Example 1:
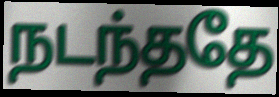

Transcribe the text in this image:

நடந்ததே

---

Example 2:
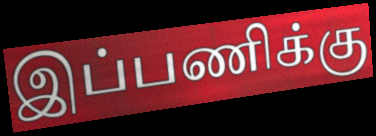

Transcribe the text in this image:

இப்பணிக்கு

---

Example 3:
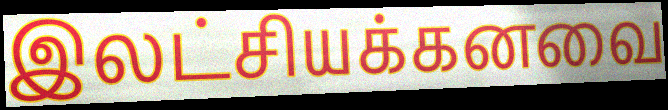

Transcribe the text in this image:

இலட்சியக்கனவை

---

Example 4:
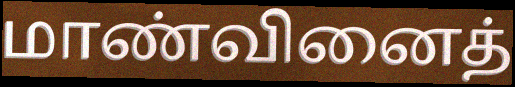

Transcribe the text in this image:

மாண்வினைத்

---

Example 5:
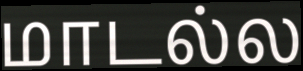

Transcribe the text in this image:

மாடல்ல